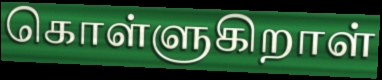
கொள்ளுகிறாள்